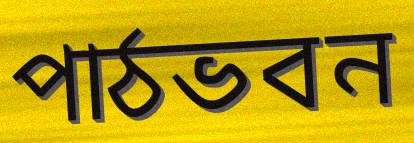
পাঠভবন